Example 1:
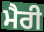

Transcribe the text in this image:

ਮੈਰੀ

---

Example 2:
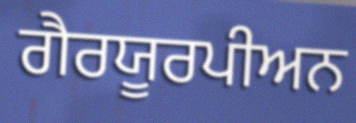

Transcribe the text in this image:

ਗੈਰਯੂਰਪੀਅਨ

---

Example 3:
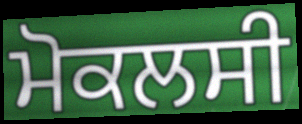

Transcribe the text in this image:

ਮੋਕਲਸੀ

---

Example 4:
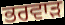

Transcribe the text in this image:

ਭਰਵਾੜ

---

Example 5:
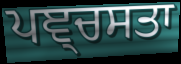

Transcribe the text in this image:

ਪਞ੍ਚਸਤਾ